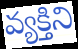
వ్యక్తిని